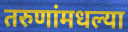
तरुणांमधल्या